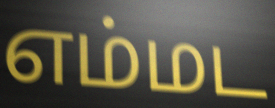
எம்மட